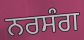
ਨਰਸੰਗ